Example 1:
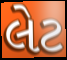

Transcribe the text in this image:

લેટ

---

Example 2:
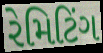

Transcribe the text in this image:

રેમિટિંગ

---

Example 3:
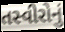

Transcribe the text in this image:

તસ્વીરોનું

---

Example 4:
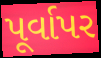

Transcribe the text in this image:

પૂર્વાપર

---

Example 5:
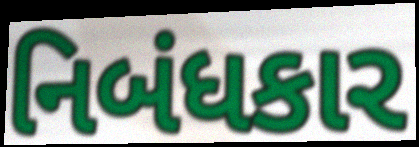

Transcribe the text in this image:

નિબંધકાર